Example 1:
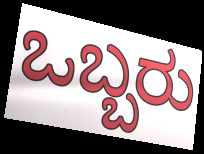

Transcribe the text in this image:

ಒಬ್ಬರು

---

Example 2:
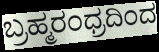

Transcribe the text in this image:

ಬ್ರಹ್ಮರಂಧ್ರದಿಂದ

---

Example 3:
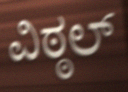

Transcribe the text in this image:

ವಿಠ್ಠಲ್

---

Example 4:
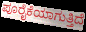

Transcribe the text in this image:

ಪೂರೈಕೆಯಾಗುತ್ತಿದೆ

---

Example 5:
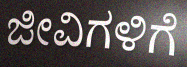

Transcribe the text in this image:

ಜೀವಿಗಳಿಗೆ